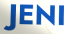
JENI